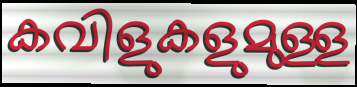
കവിളുകളുമുള്ള